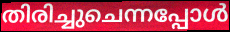
തിരിച്ചുചെന്നപ്പോൾ